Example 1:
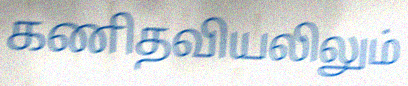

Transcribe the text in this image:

கணிதவியலிலும்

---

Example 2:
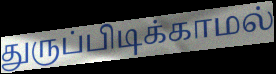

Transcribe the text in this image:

துருப்பிடிக்காமல்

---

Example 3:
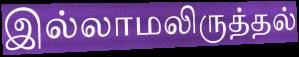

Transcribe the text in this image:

இல்லாமலிருத்தல்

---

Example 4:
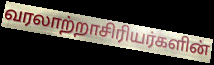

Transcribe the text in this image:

வரலாற்றாசிரியர்களின்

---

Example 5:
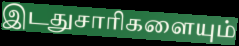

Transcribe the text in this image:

இடதுசாரிகளையும்